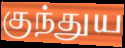
குந்துய